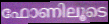
ഫോണിലൂടെ